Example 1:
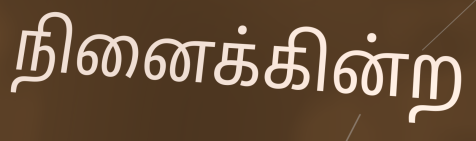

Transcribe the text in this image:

நினைக்கின்ற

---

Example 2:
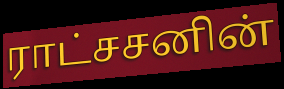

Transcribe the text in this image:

ராட்சசனின்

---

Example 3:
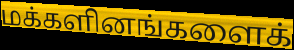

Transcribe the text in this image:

மக்களினங்களைக்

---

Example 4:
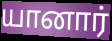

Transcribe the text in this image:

யானார்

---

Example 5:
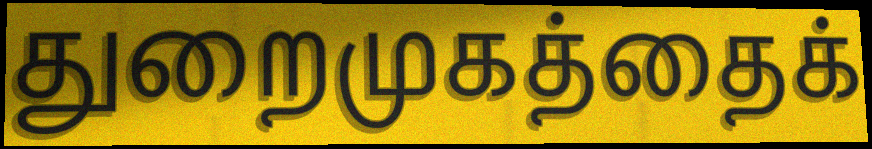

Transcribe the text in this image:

துறைமுகத்தைக்